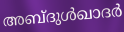
അബ്ദുൾഖാദർ